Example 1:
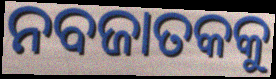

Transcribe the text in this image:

ନବଜାତକକୁ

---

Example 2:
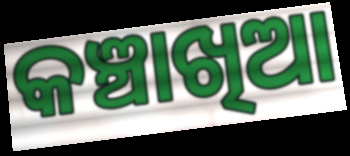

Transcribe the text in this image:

କଞ୍ଚାଖିଆ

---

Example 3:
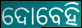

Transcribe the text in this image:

ଦୋବେହି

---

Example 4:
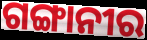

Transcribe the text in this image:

ଗଙ୍ଗାନୀର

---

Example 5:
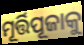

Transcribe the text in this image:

ମୂର୍ତ୍ତିପୂଜାକୁ